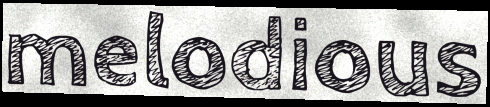
melodious